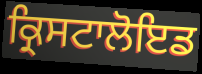
ਕ੍ਰਿਸਟਾਲੋਇਡ